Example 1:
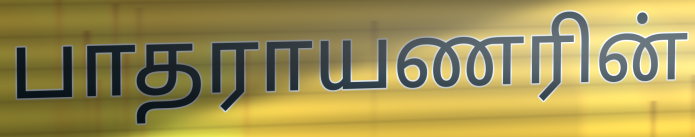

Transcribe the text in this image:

பாதராயணரின்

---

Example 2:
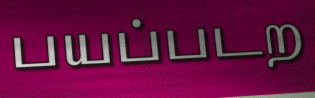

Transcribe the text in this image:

பயப்படற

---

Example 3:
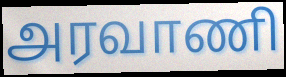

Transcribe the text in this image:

அரவாணி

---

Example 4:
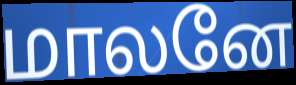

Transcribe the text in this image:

மாலனே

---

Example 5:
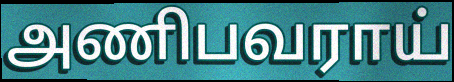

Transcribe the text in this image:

அணிபவராய்